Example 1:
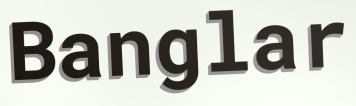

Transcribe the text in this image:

Banglar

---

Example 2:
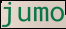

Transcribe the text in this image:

jumo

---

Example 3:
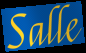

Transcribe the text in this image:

Salle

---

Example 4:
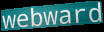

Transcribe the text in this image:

webward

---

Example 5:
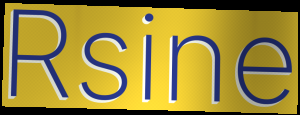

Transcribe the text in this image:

Rsine